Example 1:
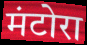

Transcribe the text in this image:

मंटोरा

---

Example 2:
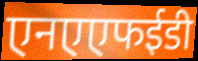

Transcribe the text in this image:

एनएएफईडी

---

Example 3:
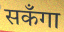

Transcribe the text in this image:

सकँगा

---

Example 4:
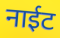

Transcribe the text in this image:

नाईट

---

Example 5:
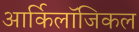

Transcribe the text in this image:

आर्किलॉजिकल